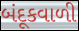
બંદૂકવાળી